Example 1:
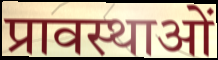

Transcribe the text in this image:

प्रावस्थाओं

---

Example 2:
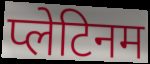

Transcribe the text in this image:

प्लेटिनम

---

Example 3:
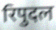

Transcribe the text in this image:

रिपुदल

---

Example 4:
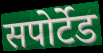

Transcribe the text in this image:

सपोर्टेड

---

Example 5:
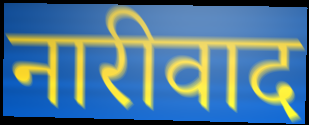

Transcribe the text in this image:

नारीवाद